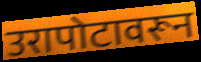
उरापोटावरून